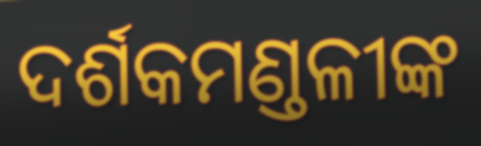
ଦର୍ଶକମଣ୍ଡଳୀଙ୍କ